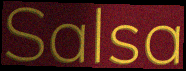
Salsa